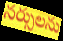
నర్సులను